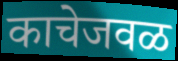
काचेजवळ